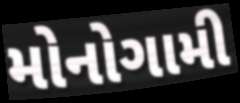
મોનોગામી